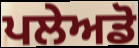
ਪਲੇਅਡੋ